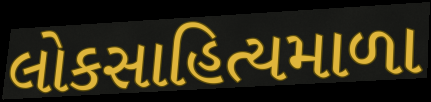
લોકસાહિત્યમાળા